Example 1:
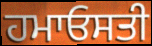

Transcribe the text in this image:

ਹਮਾਓਸਤੀ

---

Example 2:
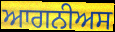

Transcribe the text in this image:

ਆਗਨੀਅਸ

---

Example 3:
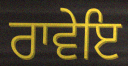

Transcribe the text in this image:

ਰਾਵੇਇ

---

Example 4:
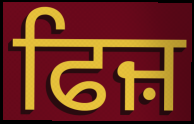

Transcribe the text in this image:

ਫਿਜ਼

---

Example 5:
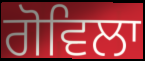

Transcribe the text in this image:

ਗੋਵਿਲਾ